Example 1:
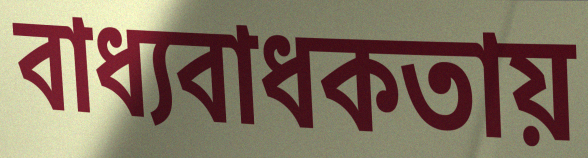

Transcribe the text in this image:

বাধ্যবাধকতায়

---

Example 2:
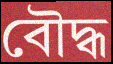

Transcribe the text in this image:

বৌদ্ধ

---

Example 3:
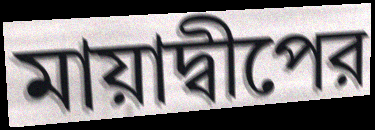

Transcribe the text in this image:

মায়াদ্বীপের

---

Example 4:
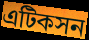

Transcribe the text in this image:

এটিকসন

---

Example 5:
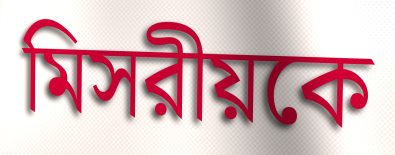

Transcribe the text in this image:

মিসরীয়কে